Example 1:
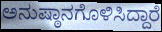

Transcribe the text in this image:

ಅನುಷ್ಠಾನಗೊಳಿಸಿದ್ದಾರೆ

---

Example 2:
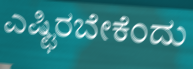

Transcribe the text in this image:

ಎಷ್ಟಿರಬೇಕೆಂದು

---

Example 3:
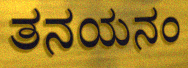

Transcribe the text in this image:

ತನಯನಂ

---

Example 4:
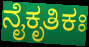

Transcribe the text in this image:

ನೈಕೃತಿಕಃ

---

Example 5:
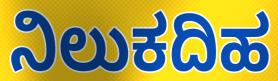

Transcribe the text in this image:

ನಿಲುಕದಿಹ